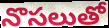
నొసలుతో